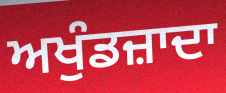
ਅਖੁੰਡਜ਼ਾਦਾ